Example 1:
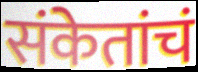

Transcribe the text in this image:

संकेतांचं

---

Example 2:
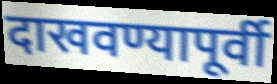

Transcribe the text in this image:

दाखवण्यापूर्वी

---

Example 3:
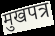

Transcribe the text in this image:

मुखपत्र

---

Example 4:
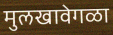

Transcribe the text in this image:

मुलखावेगळा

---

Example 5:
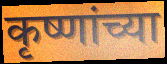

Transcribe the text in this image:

कृष्णांच्या